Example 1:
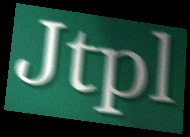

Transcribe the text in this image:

Jtpl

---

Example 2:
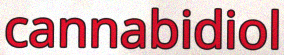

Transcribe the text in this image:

cannabidiol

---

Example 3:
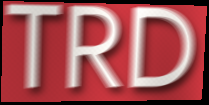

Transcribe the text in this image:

TRD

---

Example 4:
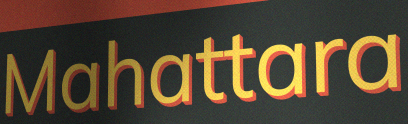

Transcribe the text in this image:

Mahattara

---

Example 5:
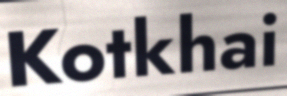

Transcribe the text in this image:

Kotkhai